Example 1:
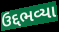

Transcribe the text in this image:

ઉદ્દભવ્યા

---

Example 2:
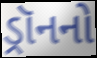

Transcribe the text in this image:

ડ્રૉનનો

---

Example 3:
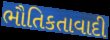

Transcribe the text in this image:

ભૌતિકતાવાદી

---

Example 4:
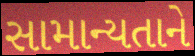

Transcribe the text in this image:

સામાન્યતાને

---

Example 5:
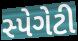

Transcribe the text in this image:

સ્પેગેટી